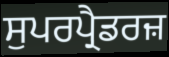
ਸੁਪਰਪ੍ਰੈਡਰਜ਼